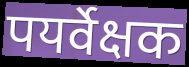
पयर्वेक्षक